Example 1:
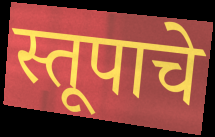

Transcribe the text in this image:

स्तूपाचे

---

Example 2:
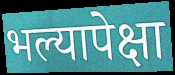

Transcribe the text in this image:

भल्यापेक्षा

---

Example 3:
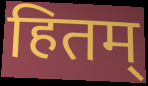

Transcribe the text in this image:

हितम्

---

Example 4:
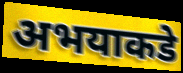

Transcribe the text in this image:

अभयाकडे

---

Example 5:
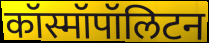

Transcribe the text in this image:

कॉस्मॉपॉलिटन